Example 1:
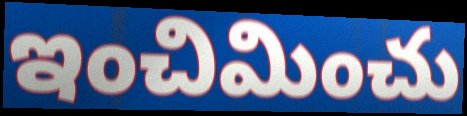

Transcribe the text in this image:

ఇంచిమించు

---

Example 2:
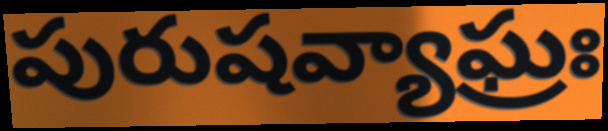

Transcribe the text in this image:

పురుషవ్యాఘ్రః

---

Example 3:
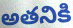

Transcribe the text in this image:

అతనికి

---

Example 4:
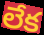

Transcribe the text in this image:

లేక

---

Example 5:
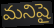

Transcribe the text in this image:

మనిషై